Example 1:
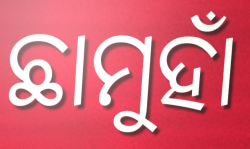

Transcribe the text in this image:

ଛାମୁହାଁ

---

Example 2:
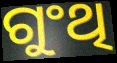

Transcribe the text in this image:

ଗୁଂଥି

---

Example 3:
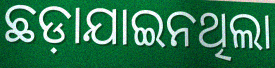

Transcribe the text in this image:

ଛଡ଼ାଯାଇନଥିଲା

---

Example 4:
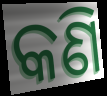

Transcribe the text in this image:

କଣି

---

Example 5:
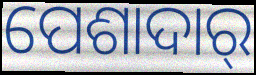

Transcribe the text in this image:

ପେଶାଦାର୍